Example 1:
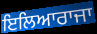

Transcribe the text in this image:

ਇਲਿਆਰਾਜਾ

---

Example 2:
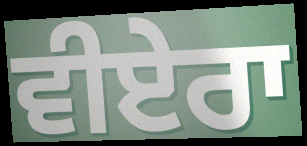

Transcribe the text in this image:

ਵੀਏਰਾ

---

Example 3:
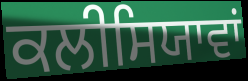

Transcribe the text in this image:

ਕਲੀਸਿਯਾਵਾਂ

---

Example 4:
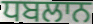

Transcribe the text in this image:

ਧਬਲਾਨ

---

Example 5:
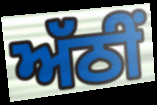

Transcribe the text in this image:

ਅੱਠੀਂ